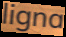
ligna